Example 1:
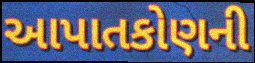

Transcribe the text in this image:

આપાતકોણની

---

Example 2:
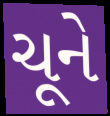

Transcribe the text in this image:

ચૂને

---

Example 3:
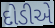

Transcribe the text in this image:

દોડીએ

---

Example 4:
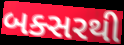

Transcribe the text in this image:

બક્સરથી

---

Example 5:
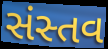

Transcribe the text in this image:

સંસ્તવ